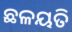
ଛଳୟତି